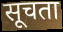
सूचता